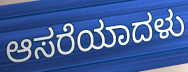
ಆಸರೆಯಾದಳು